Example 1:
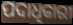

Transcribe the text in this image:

ପଦାଧିକାରୀ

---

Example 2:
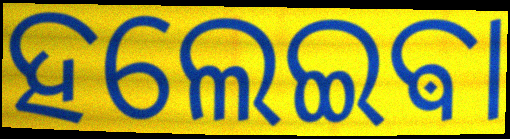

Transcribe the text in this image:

ହଲେଇଵା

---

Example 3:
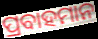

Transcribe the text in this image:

ପ୍ରବାହମାନ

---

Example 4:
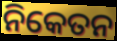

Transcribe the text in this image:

ନିକେତନ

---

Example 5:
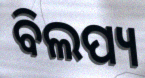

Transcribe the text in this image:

ବିଲପ୍ୟ